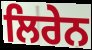
ਲਿਰੇਨ